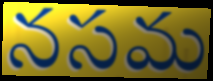
నసమ